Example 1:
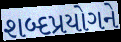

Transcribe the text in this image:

શબ્દપ્રયોગને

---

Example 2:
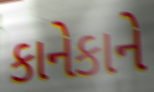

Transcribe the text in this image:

કાનેકાને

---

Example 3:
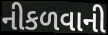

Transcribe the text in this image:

નીકળવાની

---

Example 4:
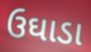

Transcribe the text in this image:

ઉઘાડા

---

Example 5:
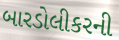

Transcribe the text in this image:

બારડોલીકરની